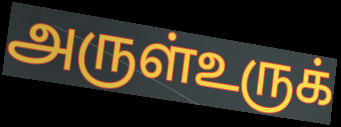
அருள்உருக்